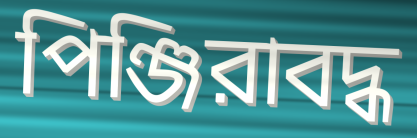
পিঞ্জিরাবদ্ধ